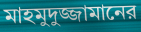
মাহমুদুজ্জামানের